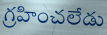
గ్రహించలేడు